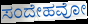
ಸಂದೇಹವೋ